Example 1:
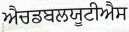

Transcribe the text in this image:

ਐਚਡਬਲਯੂਟੀਐਸ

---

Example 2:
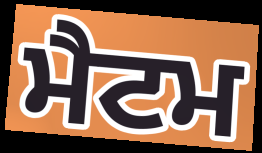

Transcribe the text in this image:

ਮੈਟਮ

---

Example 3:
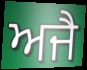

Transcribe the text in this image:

ਅਜੈ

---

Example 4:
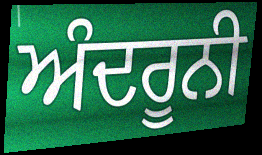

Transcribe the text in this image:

ਅੰਦਰੂਨੀ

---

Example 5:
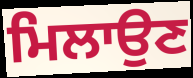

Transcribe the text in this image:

ਮਿਲਾਉਣ